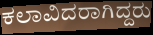
ಕಲಾವಿದರಾಗಿದ್ದರು